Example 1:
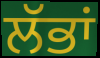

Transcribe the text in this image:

ਲੱਭਾਂ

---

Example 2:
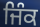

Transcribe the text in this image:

ਜਿੰਕ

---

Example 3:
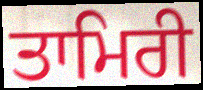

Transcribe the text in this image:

ਤਾਮਿਰੀ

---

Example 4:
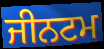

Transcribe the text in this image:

ਜੀਨਟਮ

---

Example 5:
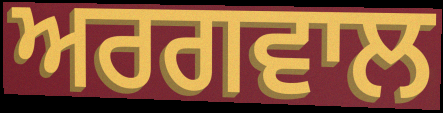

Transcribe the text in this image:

ਅਰਗਵਾਲ